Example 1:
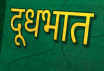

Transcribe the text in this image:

दूधभात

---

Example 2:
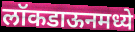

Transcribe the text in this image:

लॉकडाऊनमध्ये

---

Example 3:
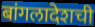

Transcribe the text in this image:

बांगलादेशची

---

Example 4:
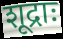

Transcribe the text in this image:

शूद्राः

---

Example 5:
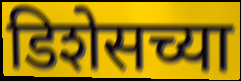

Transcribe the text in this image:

डिशेसच्या